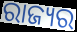
ରାଜ୍ୟର